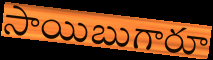
సాయిబుగారూ